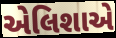
એલિશાએ